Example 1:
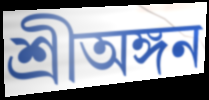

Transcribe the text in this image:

শ্রীঅঙ্গন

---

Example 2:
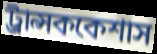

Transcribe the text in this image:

ট্রান্সককেশাস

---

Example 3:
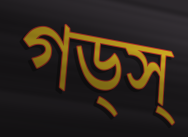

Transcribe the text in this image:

গড্স্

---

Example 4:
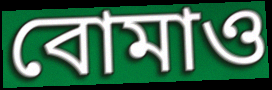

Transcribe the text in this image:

বোমাও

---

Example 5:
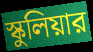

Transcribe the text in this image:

স্কুলিয়ার